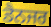
ਡੈਨਜਰ